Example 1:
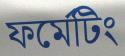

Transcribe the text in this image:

ফর্মেটিং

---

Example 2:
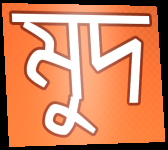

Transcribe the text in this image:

মুদ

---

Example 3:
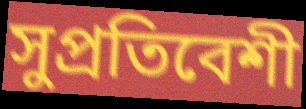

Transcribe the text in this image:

সুপ্রতিবেশী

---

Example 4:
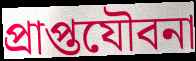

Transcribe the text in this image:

প্রাপ্তযৌবনা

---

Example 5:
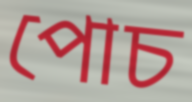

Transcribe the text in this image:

পোচ